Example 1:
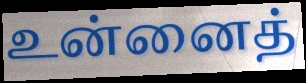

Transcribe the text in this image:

உன்னைத்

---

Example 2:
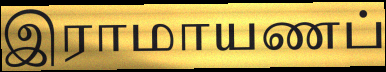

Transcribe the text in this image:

இராமாயணப்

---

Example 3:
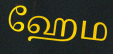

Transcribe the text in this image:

ஹேம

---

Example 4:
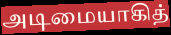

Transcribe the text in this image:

அடிமையாகித்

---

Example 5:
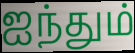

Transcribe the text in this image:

ஐந்தும்